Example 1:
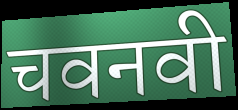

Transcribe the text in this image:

चवनवी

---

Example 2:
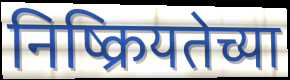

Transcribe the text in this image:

निष्क्रियतेच्या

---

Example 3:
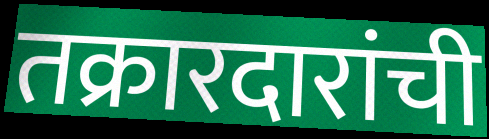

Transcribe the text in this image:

तक्रारदारांची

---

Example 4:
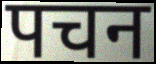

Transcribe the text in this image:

पचन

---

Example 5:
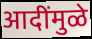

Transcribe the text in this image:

आदींमुळे